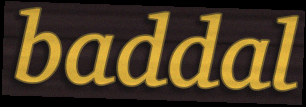
baddal